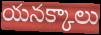
యనక్కాలు